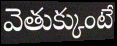
వెతుక్కుంటే